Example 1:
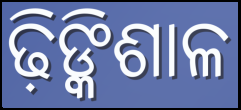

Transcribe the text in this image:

ଢ଼ିଙ୍କିଶାଳ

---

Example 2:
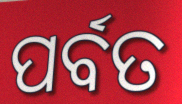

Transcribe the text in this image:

ପର୍ବତ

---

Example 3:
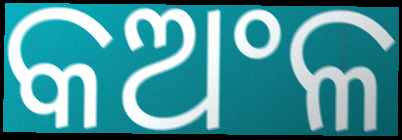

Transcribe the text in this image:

କଅଂଳ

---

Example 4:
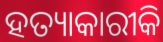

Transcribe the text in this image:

ହତ୍ୟାକାରୀକି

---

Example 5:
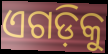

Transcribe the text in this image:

ଏଗଡ଼ିକୁ